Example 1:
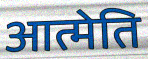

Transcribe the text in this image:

आत्मेति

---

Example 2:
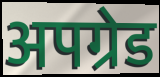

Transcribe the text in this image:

अपग्रेड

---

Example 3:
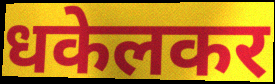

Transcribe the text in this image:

धकेलकर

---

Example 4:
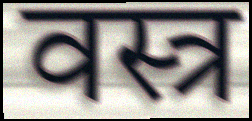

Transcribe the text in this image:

वस्‍त्र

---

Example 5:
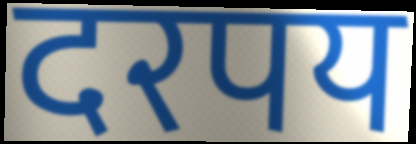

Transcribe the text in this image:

दरपय